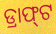
ଡ୍ରାଫ୍‌ଟ